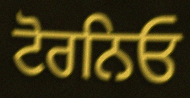
ਟੋਰਨਿਓ